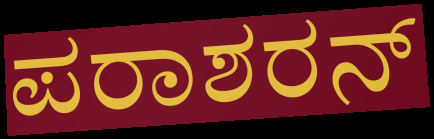
ಪರಾಶರನ್